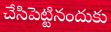
చేసిపెట్టినందుకు